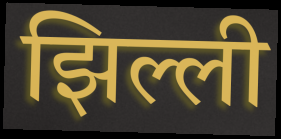
झिल्ली